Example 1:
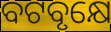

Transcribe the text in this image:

ବଟବୃକ୍ଷେ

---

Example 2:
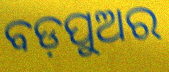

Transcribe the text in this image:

ବଡ଼ପୁଅର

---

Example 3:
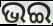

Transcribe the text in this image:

ଭଇ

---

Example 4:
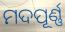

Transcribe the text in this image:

ମଦପୂର୍ଣ୍ଣ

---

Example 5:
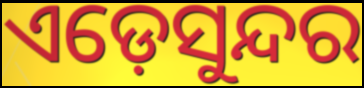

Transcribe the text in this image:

ଏଡ଼େସୁନ୍ଦର